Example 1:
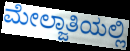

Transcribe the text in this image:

ಮೇಲ್ಜಾತಿಯಲ್ಲಿ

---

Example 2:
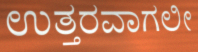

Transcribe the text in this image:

ಉತ್ತರವಾಗಲೀ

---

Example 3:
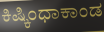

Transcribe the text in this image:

ಕಿಷ್ಕಿಂಧಾಕಾಂಡ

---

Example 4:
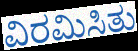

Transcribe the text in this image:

ವಿರಮಿಸಿತು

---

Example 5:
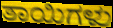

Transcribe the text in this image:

ತಾಯಿಗಳು